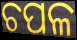
ଚପଳ